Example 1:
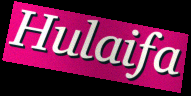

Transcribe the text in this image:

Hulaifa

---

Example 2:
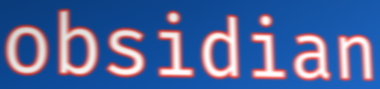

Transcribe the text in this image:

obsidian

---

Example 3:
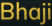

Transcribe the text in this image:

Bhaji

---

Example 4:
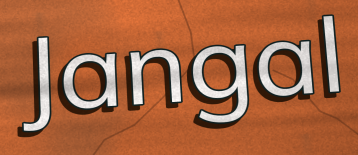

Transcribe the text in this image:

Jangal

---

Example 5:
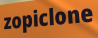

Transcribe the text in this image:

zopiclone